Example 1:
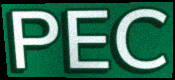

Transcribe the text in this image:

PEC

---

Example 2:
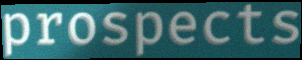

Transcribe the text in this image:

prospects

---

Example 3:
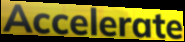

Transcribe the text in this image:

Accelerate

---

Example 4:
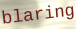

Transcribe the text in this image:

blaring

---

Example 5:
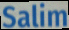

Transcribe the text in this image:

Salim